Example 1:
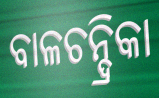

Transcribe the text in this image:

ବାଳଚନ୍ଦ୍ରିକା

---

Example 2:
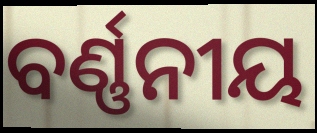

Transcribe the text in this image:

ବର୍ଣ୍ଣନୀୟ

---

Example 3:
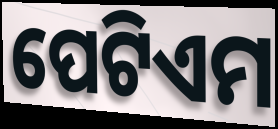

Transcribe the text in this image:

ପେଟିଏମ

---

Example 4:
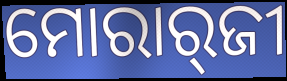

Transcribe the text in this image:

ମୋରାର୍‌ଜୀ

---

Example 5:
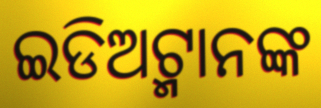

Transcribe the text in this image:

ଇଡିଅଟ୍ମାନଙ୍କ